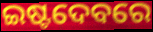
ଇଷ୍ଟଦେବରେ